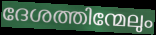
ദേശത്തിന്മേലും